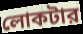
লোকটার